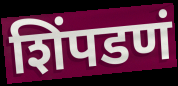
शिंपडणं